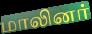
மாலினர்